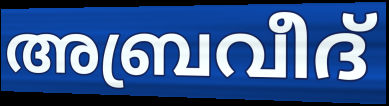
അബ്രവീദ്